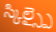
స్కిల్స్పై